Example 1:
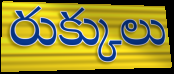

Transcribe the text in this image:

రుక్కులు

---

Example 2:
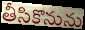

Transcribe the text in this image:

తీసికొనును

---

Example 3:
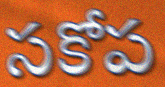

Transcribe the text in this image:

సకోప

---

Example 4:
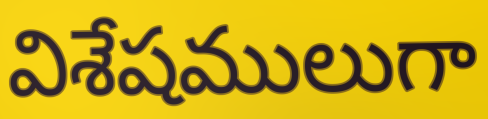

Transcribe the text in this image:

విశేషములుగా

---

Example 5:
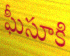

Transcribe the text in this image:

ఘీసూకి